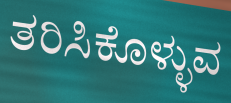
ತರಿಸಿಕೊಳ್ಳುವ